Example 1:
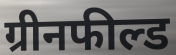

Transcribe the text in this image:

ग्रीनफील्ड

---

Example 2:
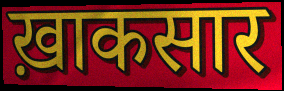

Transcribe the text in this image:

ख़ाकसार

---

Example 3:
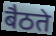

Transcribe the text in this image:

बैठते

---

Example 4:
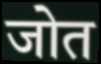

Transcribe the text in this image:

जोत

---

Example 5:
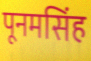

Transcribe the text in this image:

पूनमसिंह